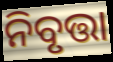
ନିବୃତ୍ତା